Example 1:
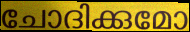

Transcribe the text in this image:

ചോദിക്കുമോ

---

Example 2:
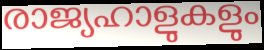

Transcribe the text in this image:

രാജ്യഹാളുകളും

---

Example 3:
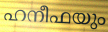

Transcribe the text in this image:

ഹനീഫയും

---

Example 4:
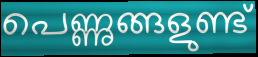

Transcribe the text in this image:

പെണ്ണുങ്ങളുണ്ട്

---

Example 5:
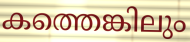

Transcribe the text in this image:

കത്തെങ്കിലും